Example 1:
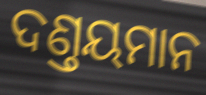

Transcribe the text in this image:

ଦଣ୍ତୟମାନ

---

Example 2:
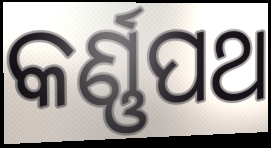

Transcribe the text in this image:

କର୍ଣ୍ଣପଥ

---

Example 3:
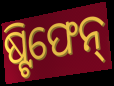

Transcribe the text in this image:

ଷ୍ଟିଫେନ୍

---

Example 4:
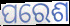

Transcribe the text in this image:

ପରେଶ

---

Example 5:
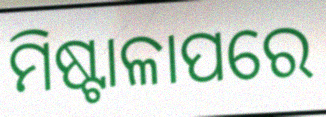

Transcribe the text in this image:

ମିଷ୍ଟାଳାପରେ